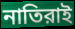
নাতিরাই